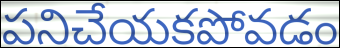
పనిచేయకపోవడం